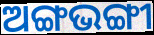
ଅଙ୍ଗଭଙ୍ଗୀ